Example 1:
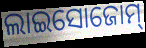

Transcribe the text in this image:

ଲାଇସୋଜୋମ୍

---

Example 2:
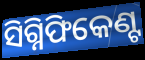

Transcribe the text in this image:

ସିଗ୍ନିଫିକେଣ୍ଟ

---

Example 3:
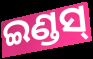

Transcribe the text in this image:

ଇଣ୍ଡସ୍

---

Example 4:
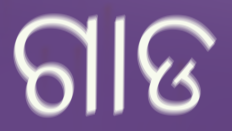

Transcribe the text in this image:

ଗାଡ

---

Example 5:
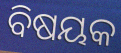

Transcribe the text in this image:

ବିଷୟକ